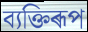
ব্যক্তিৰূপ